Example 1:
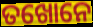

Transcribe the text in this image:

ତଖୋନେ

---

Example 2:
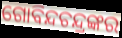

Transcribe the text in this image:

ଗୋବିନ୍ଦଚନ୍ଦ୍ରଙ୍କର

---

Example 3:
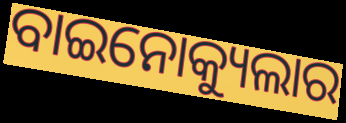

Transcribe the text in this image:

ବାଇନୋକ୍ୟୁଲାର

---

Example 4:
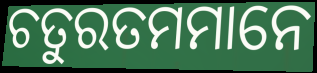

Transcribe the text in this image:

ଚତୁରତମମାନେ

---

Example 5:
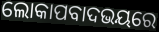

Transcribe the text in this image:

ଲୋକାପବାଦଭୟରେ